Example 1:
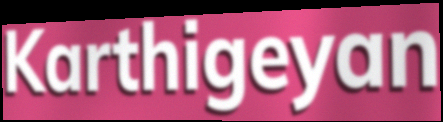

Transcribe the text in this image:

Karthigeyan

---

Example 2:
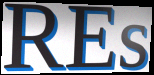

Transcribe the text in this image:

REs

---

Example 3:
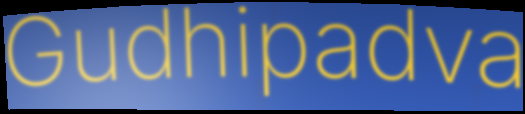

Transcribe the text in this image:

Gudhipadva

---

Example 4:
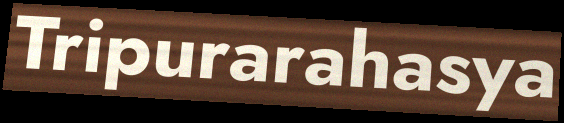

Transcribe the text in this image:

Tripurarahasya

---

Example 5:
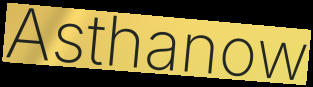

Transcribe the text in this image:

Asthanow